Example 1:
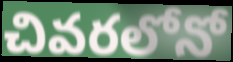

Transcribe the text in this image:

చివరలోనో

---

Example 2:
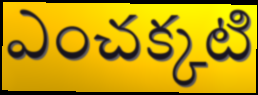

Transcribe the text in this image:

ఎంచక్కటి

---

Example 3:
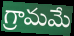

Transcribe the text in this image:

గ్రామమే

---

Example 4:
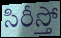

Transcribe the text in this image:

సిరీస్తో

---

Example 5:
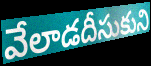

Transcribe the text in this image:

వేలాడదీసుకుని